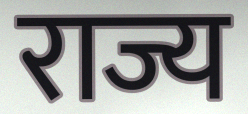
राज्य